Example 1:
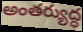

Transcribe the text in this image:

అంతర్యుద్ధ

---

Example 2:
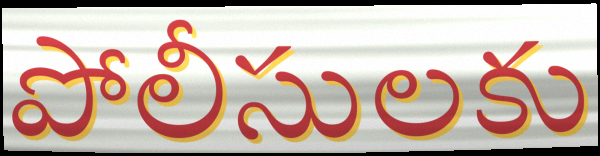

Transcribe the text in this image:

పోలీసులకు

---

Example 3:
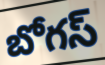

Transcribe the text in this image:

బోగస్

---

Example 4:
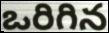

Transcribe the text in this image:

ఒరిగిన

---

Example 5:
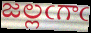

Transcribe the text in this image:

జల్లఁగాఁ